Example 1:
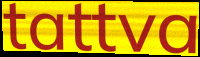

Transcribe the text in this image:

tattva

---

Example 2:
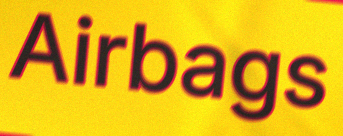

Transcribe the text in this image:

Airbags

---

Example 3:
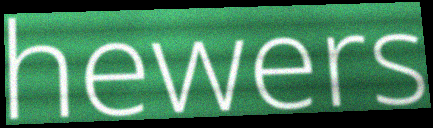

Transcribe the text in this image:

hewers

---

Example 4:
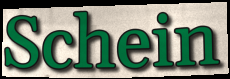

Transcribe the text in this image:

Schein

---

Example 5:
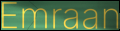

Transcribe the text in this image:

Emraan